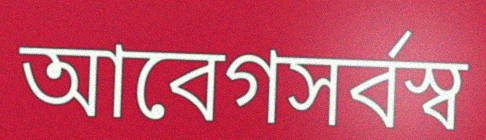
আবেগসর্বস্ব